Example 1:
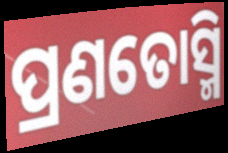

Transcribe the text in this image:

ପ୍ରଣତୋସ୍ମି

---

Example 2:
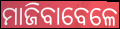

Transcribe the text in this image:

ମାଜିବାବେଳେ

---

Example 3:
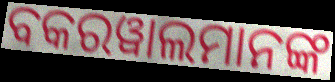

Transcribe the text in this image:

ବକରୱାଲମାନଙ୍କ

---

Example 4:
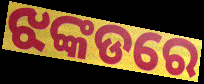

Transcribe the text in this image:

ଝଙ୍କଡରେ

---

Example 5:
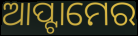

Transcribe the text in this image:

ଆପ୍ଟାମେର